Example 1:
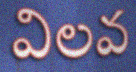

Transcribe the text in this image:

విలవ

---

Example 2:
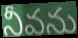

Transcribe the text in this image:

నీవను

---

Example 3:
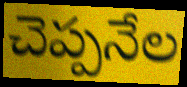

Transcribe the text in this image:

చెప్పనేల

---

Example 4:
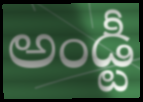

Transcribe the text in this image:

అండ్టీ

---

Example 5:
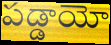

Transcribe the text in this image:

పడ్డాయో